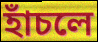
হাঁচলে